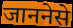
जाननेसे